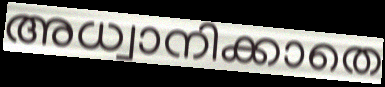
അധ്വാനിക്കാതെ